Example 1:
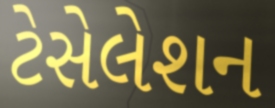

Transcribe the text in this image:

ટેસેલેશન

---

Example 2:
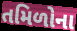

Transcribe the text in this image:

તમિળોના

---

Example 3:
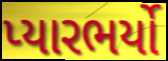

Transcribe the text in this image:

પ્યારભર્યો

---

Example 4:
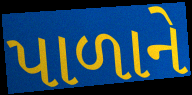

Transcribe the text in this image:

પાળાને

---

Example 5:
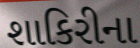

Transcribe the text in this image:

શાકિરીના